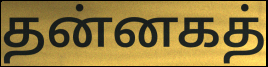
தன்னகத்